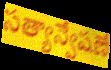
సత్యాన్వేషణే